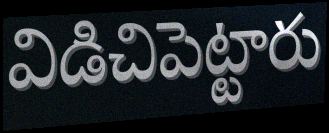
విడిచిపెట్టారు